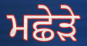
ਮਛੇੜੇ